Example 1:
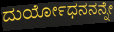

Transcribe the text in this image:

ದುರ್ಯೋಧನನನ್ನೇ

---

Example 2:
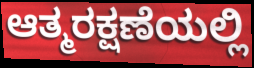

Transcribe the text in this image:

ಆತ್ಮರಕ್ಷಣೆಯಲ್ಲಿ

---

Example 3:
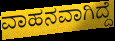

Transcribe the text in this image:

ವಾಹನವಾಗಿದ್ದೆ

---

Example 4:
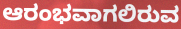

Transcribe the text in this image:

ಆರಂಭವಾಗಲಿರುವ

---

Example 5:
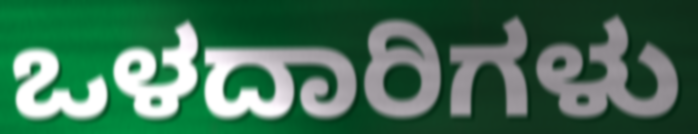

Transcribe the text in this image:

ಒಳದಾರಿಗಳು